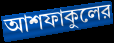
আশফাকুলের